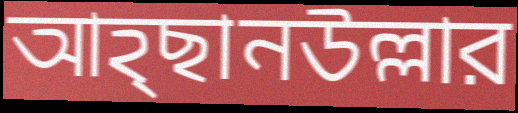
আহ্ছানউল্লার